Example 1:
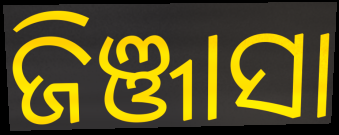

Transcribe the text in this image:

ଜିଞ୍ଜାସା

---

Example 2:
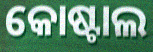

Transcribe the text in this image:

କୋଷ୍ଟାଲ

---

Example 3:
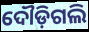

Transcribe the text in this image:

ଦୌଡ଼ିଗଲି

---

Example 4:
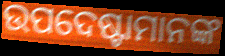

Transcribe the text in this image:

ଉପଦେଷ୍ଟାମାନଙ୍କ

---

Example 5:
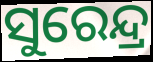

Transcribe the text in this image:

ସୁରେନ୍ଦ୍ର